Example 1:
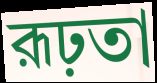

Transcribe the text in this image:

রূঢ়তা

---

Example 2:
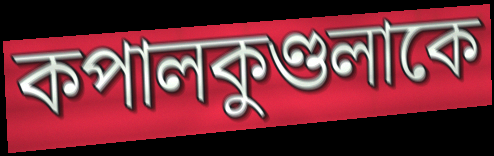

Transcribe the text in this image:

কপালকুণ্ডলাকে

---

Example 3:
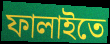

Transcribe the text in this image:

ফালাইতে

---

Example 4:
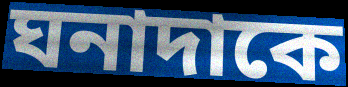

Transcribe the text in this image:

ঘনাদাকে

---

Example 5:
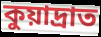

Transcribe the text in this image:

কুয়াদ্রাত